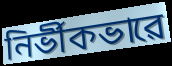
নিৰ্ভীকভাৱে